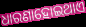
ଧାରଣାହୋଇଥାଏ